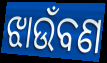
ଝାଉଁବଣ